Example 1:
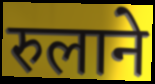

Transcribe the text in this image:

रुलाने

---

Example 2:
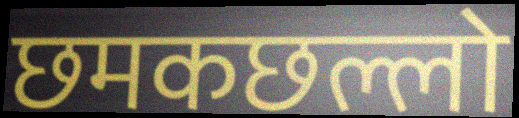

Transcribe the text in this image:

छमकछल्लो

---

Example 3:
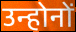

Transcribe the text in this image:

उन्होनों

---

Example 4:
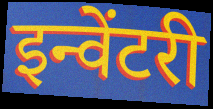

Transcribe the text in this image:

इन्वेंटरी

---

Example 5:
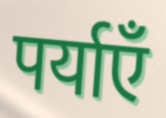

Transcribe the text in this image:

पर्याएँ